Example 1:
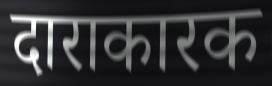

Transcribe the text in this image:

दाराकारक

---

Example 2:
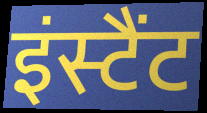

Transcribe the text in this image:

इंस्टैंट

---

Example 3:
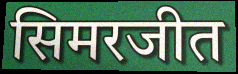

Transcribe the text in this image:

सिमरजीत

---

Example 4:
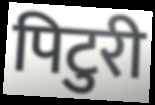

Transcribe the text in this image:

पिटुरी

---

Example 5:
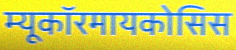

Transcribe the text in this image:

म्यूकॉरमायकोसिस